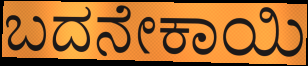
ಬದನೇಕಾಯಿ